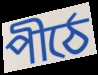
পীঠে